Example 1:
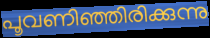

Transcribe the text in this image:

പൂവണിഞ്ഞിരിക്കുന്നു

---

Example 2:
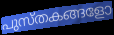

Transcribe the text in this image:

പുസ്തകങ്ങളോ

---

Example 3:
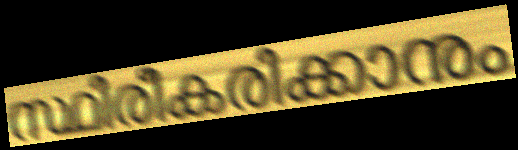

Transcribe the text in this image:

സ്ഥിരീകരിക്കാനും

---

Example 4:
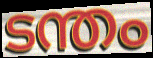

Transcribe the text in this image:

ടന്തം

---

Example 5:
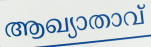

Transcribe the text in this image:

ആഖ്യാതാവ്